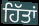
ਹਿੱਤਾਂ